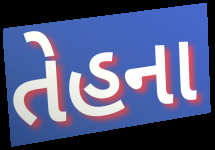
તેહના